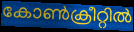
കോൺക്രീറ്റിൽ